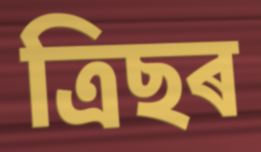
ত্ৰিছৰ